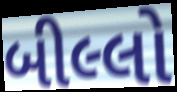
બીલ્લો